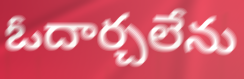
ఓదార్చలేను